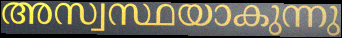
അസ്വസ്ഥയാകുന്നു